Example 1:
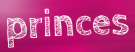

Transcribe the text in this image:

princes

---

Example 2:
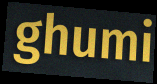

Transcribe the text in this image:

ghumi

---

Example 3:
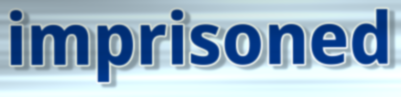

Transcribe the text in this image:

imprisoned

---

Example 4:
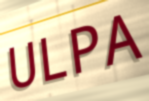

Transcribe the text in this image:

ULPA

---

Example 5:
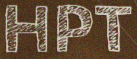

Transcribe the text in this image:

HPT